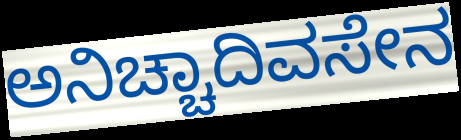
ಅನಿಚ್ಚಾದಿವಸೇನ